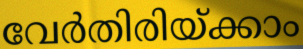
വേർതിരിയ്ക്കാം